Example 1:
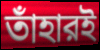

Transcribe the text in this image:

তাঁহারই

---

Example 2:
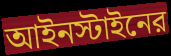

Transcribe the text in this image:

আইনস্টাইনের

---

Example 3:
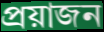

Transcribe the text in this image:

প্রয়াজন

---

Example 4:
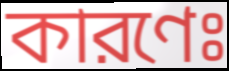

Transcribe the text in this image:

কারণেঃ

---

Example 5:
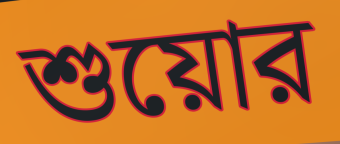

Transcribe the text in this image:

শুয়োর